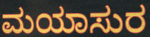
ಮಯಾಸುರ